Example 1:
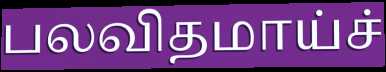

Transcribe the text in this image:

பலவிதமாய்ச்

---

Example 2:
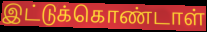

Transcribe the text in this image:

இட்டுக்கொண்டாள்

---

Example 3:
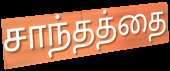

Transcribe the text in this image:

சாந்தத்தை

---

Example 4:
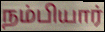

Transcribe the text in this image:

நம்பியார்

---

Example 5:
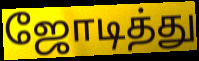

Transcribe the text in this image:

ஜோடித்து